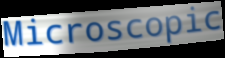
Microscopic